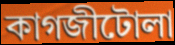
কাগজীটোলা